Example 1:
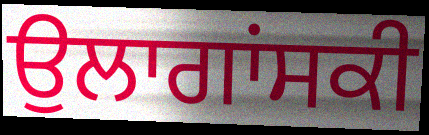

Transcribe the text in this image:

ਉਲਾਗਾਂਸਕੀ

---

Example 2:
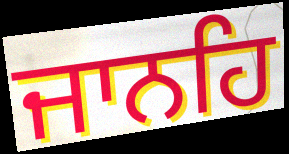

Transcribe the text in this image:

ਜਾਨਹਿ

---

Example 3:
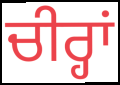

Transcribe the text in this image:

ਚੀਰ੍ਹਾਂ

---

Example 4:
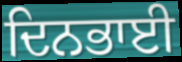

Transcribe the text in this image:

ਦਿਨਭਾਈ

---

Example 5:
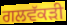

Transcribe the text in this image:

ਗਲਵੱਕੜੀ